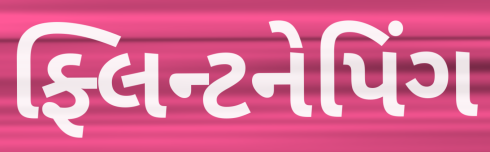
ફ્લિન્ટનેપિંગ